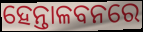
ହେନ୍ତାଳବନରେ